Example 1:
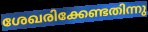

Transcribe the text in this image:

ശേഖരിക്കേണ്ടതിന്നു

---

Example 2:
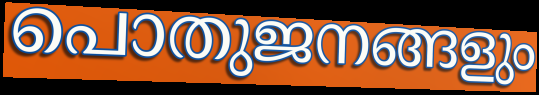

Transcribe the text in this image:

പൊതുജനങ്ങളും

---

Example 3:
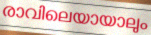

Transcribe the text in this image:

രാവിലെയായാലും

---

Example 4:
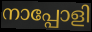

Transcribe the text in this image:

നാപ്പോളി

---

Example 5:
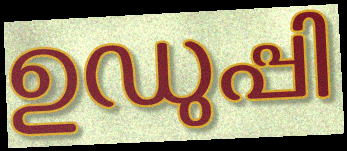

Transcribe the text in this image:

ഉഡുപ്പി